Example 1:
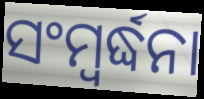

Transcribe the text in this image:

ସଂମ୍ବର୍ଦ୍ଧନା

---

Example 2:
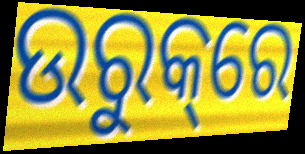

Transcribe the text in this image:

ଉରୁକ୍‌ରେ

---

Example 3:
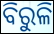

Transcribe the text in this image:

ବିରୁଳି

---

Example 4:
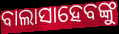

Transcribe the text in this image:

ବାଲାସାହେବଙ୍କୁ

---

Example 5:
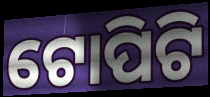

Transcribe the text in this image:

ଟୋପିଟି